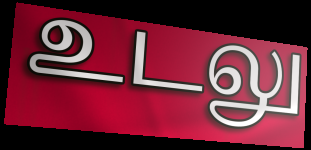
உடலு